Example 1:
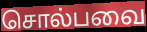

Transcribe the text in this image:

சொல்பவை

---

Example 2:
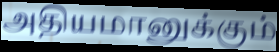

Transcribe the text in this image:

அதியமானுக்கும்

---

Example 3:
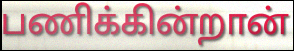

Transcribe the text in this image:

பணிக்கின்றான்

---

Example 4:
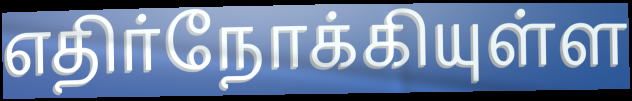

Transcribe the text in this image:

எதிர்நோக்கியுள்ள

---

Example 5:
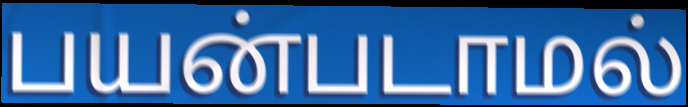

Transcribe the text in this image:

பயன்படாமல்